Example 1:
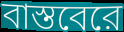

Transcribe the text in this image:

বাস্তবেরে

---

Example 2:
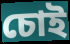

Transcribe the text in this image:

চোই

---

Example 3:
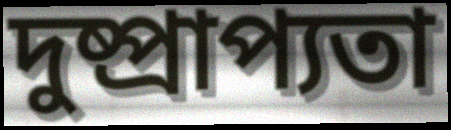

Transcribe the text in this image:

দুষ্প্রাপ্যতা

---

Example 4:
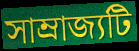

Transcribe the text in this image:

সাম্রাজ্যটি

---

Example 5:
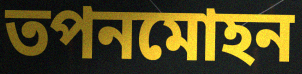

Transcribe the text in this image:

তপনমোহন